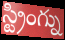
స్ట్రింగ్ను